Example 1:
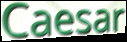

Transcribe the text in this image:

Caesar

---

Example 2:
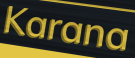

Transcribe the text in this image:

Karana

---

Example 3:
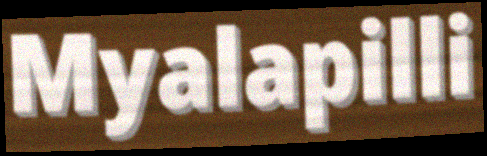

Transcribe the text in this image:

Myalapilli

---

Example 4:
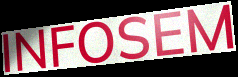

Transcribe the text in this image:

INFOSEM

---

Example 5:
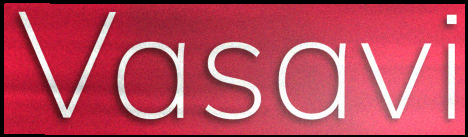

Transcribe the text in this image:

Vasavi